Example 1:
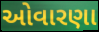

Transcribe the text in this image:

ઓવારણા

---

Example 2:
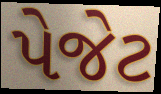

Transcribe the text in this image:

પેજેટ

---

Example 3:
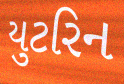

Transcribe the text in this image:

યુટરિન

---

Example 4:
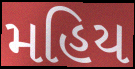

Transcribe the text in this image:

મહિય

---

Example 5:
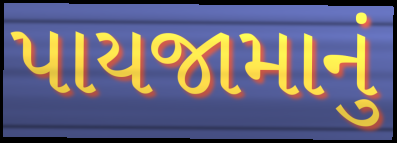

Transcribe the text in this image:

પાયજામાનું